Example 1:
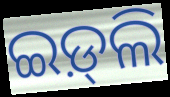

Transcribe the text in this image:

ଇଡ଼୍‌ଲି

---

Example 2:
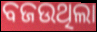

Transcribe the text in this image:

ବଜଉଥିଲା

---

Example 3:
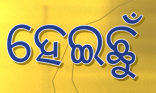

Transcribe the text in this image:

ହେଇଛୁଁ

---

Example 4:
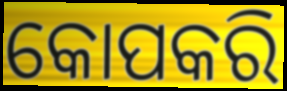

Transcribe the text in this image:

କୋପକରି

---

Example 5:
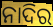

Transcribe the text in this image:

ନାଦିର